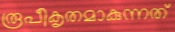
രൂപീകൃതമാകുന്നത്